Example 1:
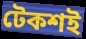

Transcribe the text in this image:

টেকশই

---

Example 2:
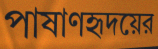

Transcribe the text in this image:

পাষাণহৃদয়ের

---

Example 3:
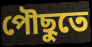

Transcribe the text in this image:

পৌছুতে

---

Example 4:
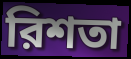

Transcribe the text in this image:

রিশতা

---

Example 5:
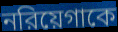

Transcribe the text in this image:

নরিয়েগাকে